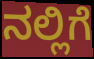
ನಲ್ಲಿಗೆ